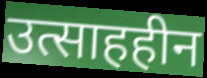
उत्साहहीन